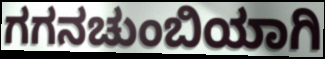
ಗಗನಚುಂಬಿಯಾಗಿ